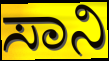
ಸಾನಿ